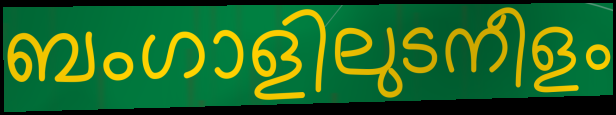
ബംഗാളിലുടനീളം